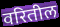
वरितील